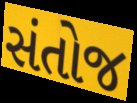
સંતોજ